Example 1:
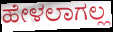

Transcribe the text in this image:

ಹೇಳಲಾಗಲ್ಲ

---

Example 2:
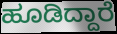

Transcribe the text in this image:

ಹೂಡಿದ್ದಾರೆ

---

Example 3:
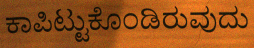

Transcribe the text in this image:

ಕಾಪಿಟ್ಟುಕೊಂಡಿರುವುದು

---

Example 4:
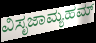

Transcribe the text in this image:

ವಿಸೃಜಾಮ್ಯಹಮ್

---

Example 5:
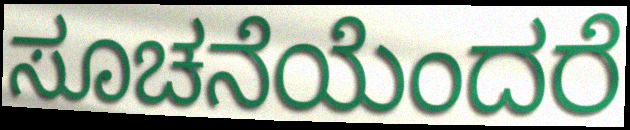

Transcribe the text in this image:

ಸೂಚನೆಯೆಂದರೆ